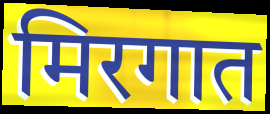
मिरगात